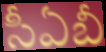
సీఏబీ